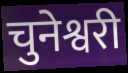
चुनेश्वरी